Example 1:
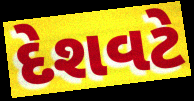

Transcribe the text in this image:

દેશવટે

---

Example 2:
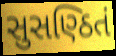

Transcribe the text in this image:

સુસણ્ઠિતં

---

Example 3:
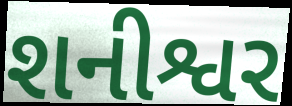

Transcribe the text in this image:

શનીશ્વર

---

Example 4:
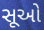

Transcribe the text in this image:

સૂઓ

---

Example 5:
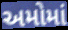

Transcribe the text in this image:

અમોમાં